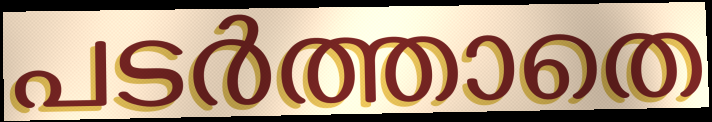
പടർത്താതെ